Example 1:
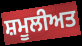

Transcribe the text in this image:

ਸ਼ਮੂਲੀਅਤ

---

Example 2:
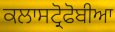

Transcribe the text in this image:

ਕਲਾਸਟ੍ਰੋਫੋਬੀਆ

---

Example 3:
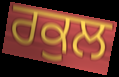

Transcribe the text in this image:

ਰਕੁਲ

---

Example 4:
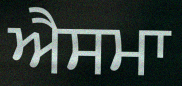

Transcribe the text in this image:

ਐਸਮਾ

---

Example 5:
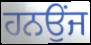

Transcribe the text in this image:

ਹਨਉਂਜ